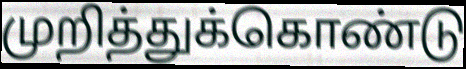
முறித்துக்கொண்டு